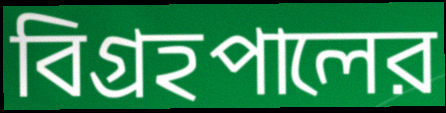
বিগ্রহপালের